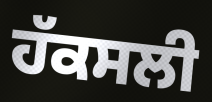
ਹੱਕਸਲੀ